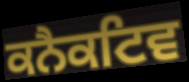
ਕਨੈਕਟਿਵ